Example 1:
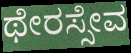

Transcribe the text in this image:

ಥೇರಸ್ಸೇವ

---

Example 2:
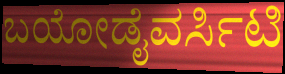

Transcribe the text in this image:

ಬಯೋಡೈವರ್ಸಿಟಿ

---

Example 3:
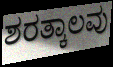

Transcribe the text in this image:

ಶರತ್ಕಾಲವು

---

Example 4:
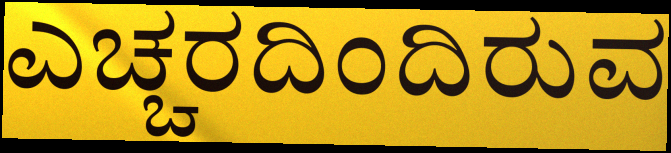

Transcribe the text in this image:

ಎಚ್ಚರದಿಂದಿರುವ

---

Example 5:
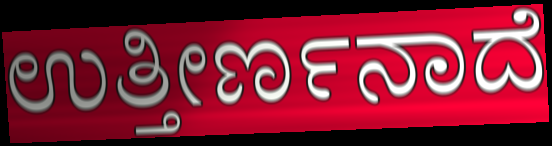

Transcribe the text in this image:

ಉತ್ತೀರ್ಣನಾದೆ